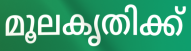
മൂലകൃതിക്ക്